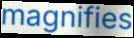
magnifies